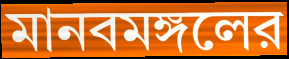
মানবমঙ্গলের